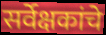
सर्वेक्षकांचे